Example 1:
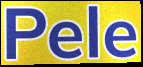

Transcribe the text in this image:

Pele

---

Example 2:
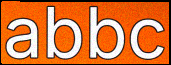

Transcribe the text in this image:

abbc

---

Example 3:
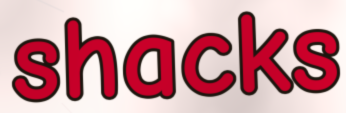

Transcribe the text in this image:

shacks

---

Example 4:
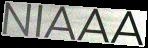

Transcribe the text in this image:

NIAAA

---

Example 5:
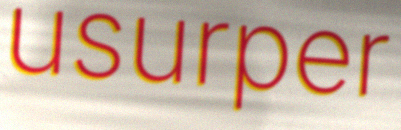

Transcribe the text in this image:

usurper